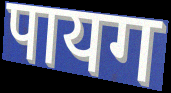
पायग